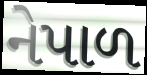
નેપાળ